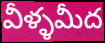
వీళ్ళమీద